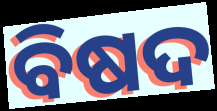
ବିଷଦ